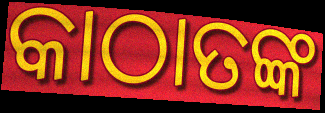
କାଠାତଙ୍କ